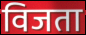
विजता